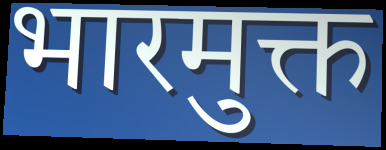
भारमुक्त